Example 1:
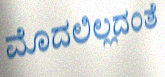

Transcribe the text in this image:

ಮೊದಲಿಲ್ಲದಂತೆ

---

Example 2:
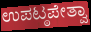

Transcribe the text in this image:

ಉಪಟ್ಠಪೇತ್ವಾ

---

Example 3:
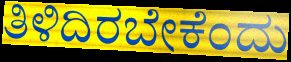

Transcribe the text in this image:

ತಿಳಿದಿರಬೇಕೆಂದು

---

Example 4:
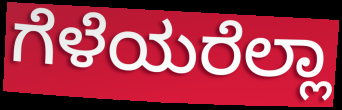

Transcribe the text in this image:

ಗೆಳೆಯರೆಲ್ಲಾ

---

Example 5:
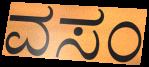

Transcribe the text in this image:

ವಸಂ